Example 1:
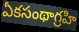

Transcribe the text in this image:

ఏకసంథాగ్రహి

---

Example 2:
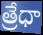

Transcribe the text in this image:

త్రేధా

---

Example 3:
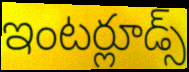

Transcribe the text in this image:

ఇంటర్లూడ్స్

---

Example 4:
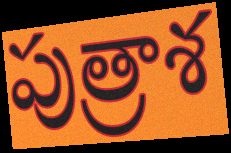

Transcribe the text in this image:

పుత్రాశ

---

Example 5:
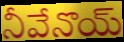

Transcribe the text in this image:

నీవేనొయ్